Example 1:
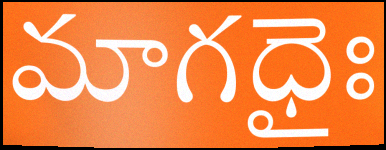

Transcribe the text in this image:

మాగధైః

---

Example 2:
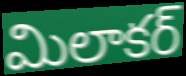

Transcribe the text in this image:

మిలాకర్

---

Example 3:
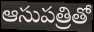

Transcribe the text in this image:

ఆసుపత్రితో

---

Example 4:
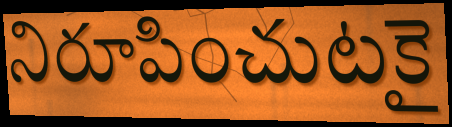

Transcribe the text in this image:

నిరూపించుటకై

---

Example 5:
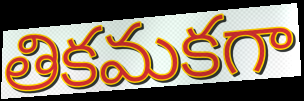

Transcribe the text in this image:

తికమకగా